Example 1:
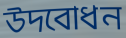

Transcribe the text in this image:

উদবোধন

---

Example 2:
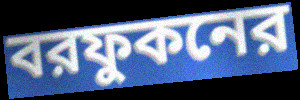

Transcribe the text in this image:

বরফুকনের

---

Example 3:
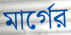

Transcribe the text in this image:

মার্গের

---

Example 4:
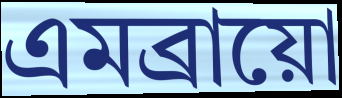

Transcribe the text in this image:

এমব্রায়ো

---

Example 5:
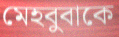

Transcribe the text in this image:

মেহবুবাকে